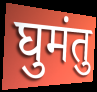
घुमंतु